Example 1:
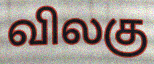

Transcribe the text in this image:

விலகு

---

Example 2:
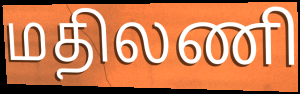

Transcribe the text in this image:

மதிலணி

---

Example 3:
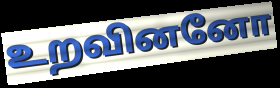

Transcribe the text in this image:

உறவினனோ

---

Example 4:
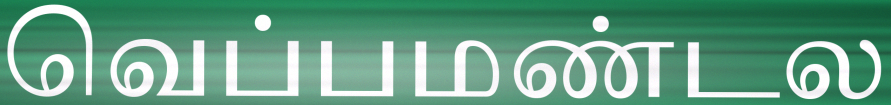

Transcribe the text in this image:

வெப்பமண்டல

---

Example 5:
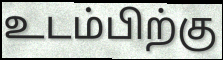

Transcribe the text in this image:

உடம்பிற்கு